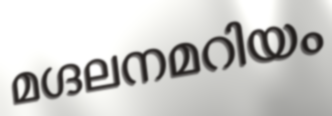
മഗ്ദലനമറിയം